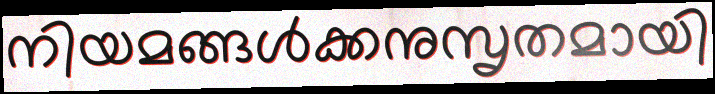
നിയമങ്ങൾക്കനുസൃതമായി